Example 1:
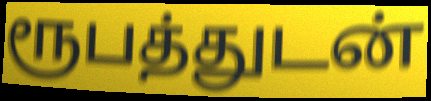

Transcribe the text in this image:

ரூபத்துடன்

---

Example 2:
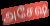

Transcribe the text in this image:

அசேஷ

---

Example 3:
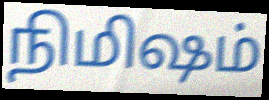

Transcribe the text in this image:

நிமிஷம்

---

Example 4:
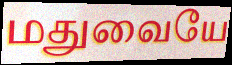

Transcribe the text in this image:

மதுவையே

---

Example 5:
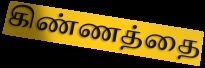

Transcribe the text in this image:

கிண்ணத்தை